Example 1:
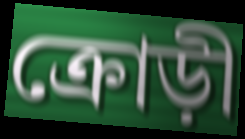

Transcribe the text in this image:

ক্রোড়ী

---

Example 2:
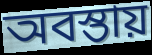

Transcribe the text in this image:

অবস্তায়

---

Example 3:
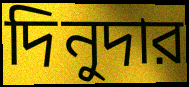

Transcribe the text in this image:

দিনুদার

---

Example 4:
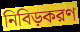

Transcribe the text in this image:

নিবিড়করণ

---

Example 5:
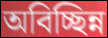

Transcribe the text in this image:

অবিচ্ছিন্ন